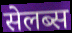
सेलब्स